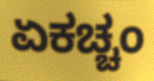
ಏಕಚ್ಚಂ